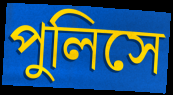
পুলিসে